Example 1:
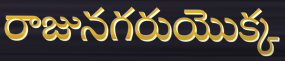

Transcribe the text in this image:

రాజునగరుయొక్క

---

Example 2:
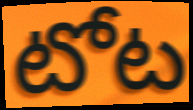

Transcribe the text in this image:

టోట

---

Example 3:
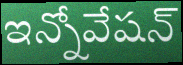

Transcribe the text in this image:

ఇన్నోవేషన్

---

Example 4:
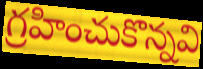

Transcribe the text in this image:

గ్రహించుకొన్నవి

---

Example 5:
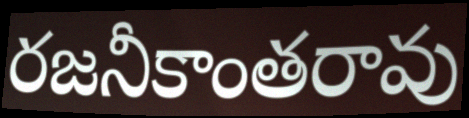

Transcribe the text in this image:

రజనీకాంతరావు